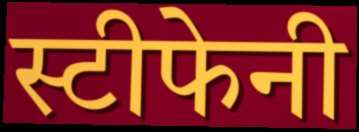
स्टीफेनी